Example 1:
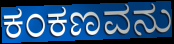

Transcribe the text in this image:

ಕಂಕಣವನು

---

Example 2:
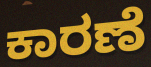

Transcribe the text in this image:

ಕಾರಣೆ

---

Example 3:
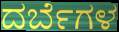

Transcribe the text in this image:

ದರ್ಬೆಗಳ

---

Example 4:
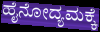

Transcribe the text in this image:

ಹೈನೋದ್ಯಮಕ್ಕೆ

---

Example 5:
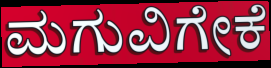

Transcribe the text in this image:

ಮಗುವಿಗೇಕೆ